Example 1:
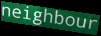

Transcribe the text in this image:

neighbour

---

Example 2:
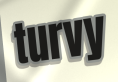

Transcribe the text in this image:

turvy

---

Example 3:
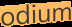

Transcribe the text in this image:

odium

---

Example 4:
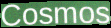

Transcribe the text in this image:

Cosmos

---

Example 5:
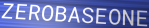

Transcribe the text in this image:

ZEROBASEONE